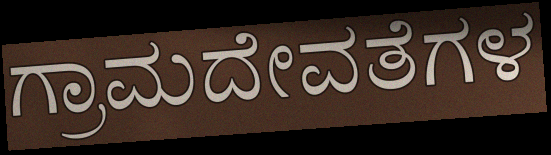
ಗ್ರಾಮದೇವತೆಗಳ